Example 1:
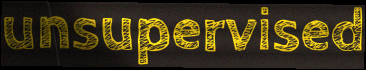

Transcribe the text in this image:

unsupervised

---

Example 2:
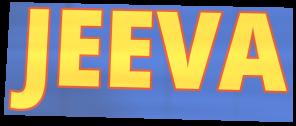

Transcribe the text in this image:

JEEVA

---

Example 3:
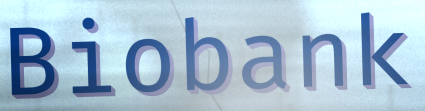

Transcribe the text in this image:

Biobank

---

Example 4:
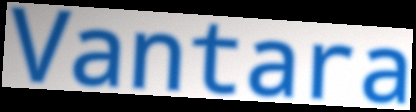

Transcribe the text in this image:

Vantara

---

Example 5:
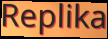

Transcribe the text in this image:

Replika